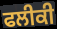
ਫਲੀਕੀ